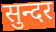
सुन्दर